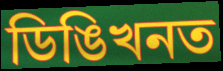
ডিঙিখনত